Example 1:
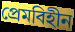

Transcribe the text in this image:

প্রেমবিহীন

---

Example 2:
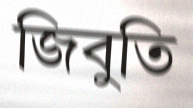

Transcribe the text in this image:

জিবুতি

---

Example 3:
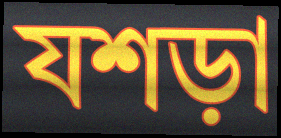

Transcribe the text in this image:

যশড়া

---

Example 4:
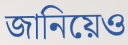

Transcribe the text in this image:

জানিয়েও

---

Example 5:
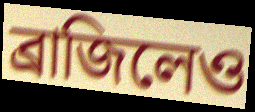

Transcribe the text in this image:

ব্রাজিলেও